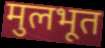
मुलभूत